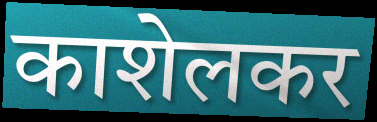
काशेलकर